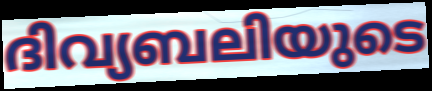
ദിവ്യബലിയുടെ